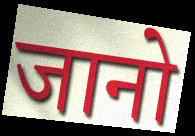
जानो